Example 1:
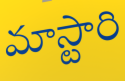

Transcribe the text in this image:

మాస్టారి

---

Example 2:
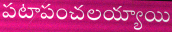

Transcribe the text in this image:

పటాపంచలయ్యాయి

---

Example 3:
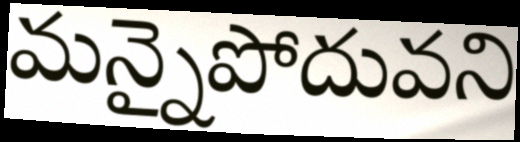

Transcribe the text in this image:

మన్నైపోదువని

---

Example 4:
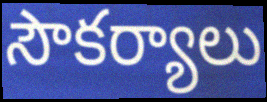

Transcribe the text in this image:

సౌకర్యాలు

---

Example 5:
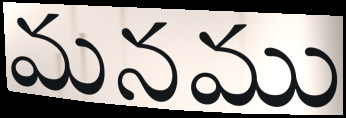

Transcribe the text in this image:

మనము